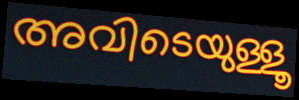
അവിടെയുള്ളൂ